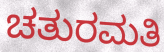
ಚತುರಮತಿ